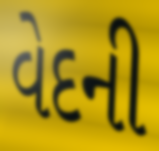
વેદની